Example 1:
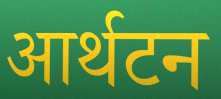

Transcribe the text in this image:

आर्थटन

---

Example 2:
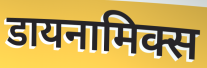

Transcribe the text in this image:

डायनामिक्स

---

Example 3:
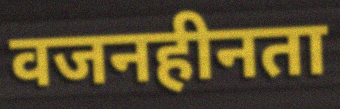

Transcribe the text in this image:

वजनहीनता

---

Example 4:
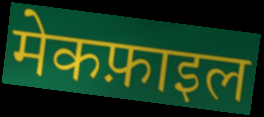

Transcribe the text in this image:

मेकफ़ाइल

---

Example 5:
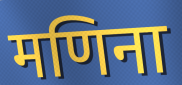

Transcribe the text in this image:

मणिना